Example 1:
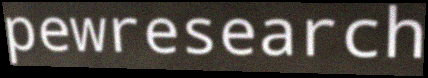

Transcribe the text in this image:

pewresearch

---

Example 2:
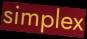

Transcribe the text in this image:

simplex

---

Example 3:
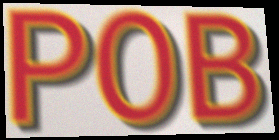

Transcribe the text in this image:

POB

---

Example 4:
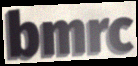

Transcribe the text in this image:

bmrc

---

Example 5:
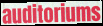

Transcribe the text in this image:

auditoriums